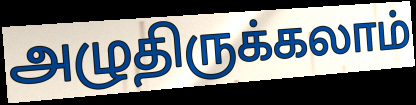
அழுதிருக்கலாம்